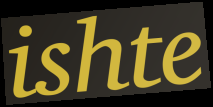
ishte